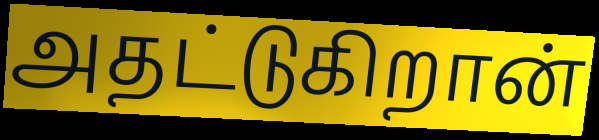
அதட்டுகிறான்